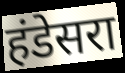
हंडेसरा